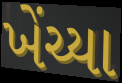
ખેંચ્યા